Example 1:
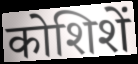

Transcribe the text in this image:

कोशिशें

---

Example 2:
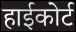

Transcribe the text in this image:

हाईकोर्ट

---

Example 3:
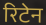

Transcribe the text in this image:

रिटेन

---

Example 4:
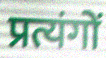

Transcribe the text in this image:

प्रत्यंगों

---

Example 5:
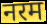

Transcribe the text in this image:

नरम